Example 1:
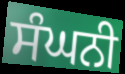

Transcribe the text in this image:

ਸੰਘਨੀ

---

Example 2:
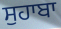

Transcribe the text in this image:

ਸੁਹਾਬਾ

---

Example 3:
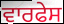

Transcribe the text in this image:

ਵਾਰਫੇਸ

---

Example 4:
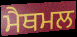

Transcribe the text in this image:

ਮੈਥਮਲ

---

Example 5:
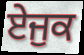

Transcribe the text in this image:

ਏਜੁਕ